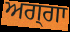
ਅਗ੍ਗਾ